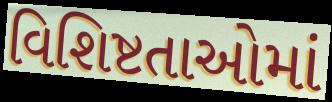
વિશિષ્ટતાઓમાં